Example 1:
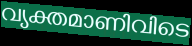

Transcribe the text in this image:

വ്യക്തമാണിവിടെ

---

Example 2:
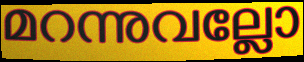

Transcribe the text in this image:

മറന്നുവല്ലോ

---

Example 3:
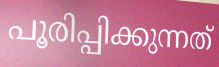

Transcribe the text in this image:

പൂരിപ്പിക്കുന്നത്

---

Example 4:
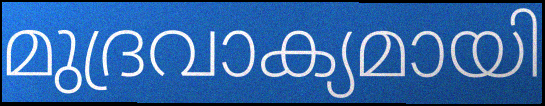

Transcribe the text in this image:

മുദ്രവാക്യമായി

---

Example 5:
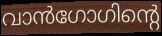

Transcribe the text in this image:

വാൻഗോഗിന്റെ